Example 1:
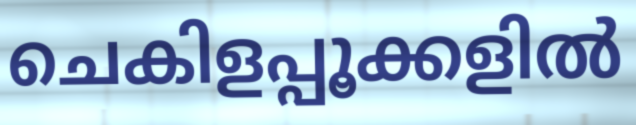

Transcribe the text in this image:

ചെകിളപ്പൂക്കളിൽ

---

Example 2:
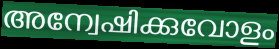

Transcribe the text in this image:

അന്വേഷിക്കുവോളം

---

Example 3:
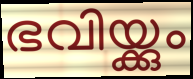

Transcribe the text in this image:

ഭവിയ്ക്കും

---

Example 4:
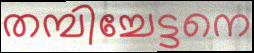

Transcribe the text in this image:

തമ്പിച്ചേട്ടനെ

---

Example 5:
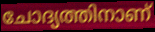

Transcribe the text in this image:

ചോദ്യത്തിനാണ്